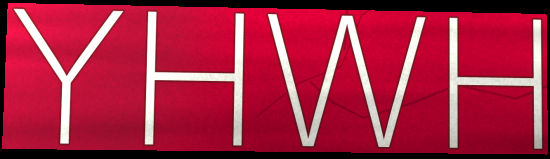
YHWH